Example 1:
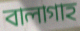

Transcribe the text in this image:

বালাগাহ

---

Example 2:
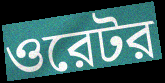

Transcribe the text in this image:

ওরেটর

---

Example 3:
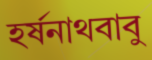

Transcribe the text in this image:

হর্ষনাথবাবু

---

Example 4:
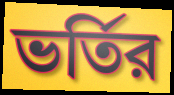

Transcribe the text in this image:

ভর্তির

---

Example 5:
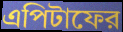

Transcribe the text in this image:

এপিটাফের